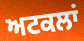
ਅਟਕਲਾਂ